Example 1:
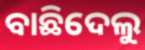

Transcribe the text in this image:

ବାଛିଦେଲୁ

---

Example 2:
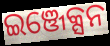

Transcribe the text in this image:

ଇଞ୍ଜେକ୍ସନ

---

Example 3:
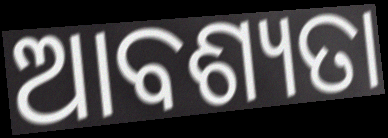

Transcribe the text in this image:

ଆବଶ୍ୟତା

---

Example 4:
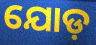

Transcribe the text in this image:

ଯୋଡ଼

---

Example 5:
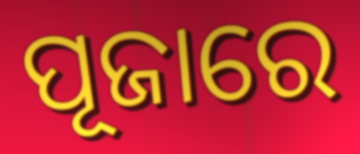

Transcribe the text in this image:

ପୂଜାରେ